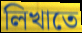
লিখাতে